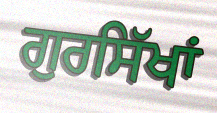
ਗੁਰਸਿੱਖਾਂ